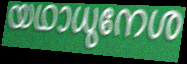
യഥാധുനേശ